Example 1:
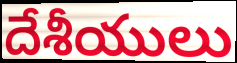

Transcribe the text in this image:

దేశీయులు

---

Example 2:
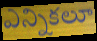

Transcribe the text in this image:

ఎన్నికలూ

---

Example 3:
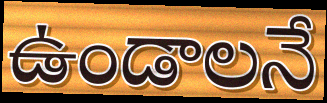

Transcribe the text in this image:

ఉండాలనే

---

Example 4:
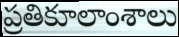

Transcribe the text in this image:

ప్రతికూలాంశాలు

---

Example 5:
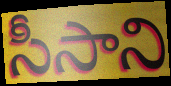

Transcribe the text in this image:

సీసాని